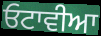
ਓਟਾਵੀਆ